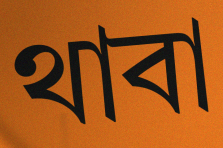
থাবা